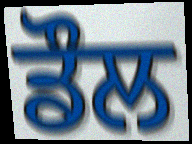
ਡੌਲ